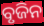
ବୃଜିନ